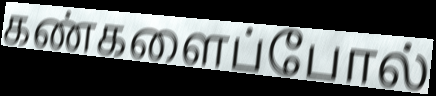
கண்களைப்போல்